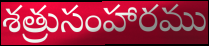
శత్రుసంహారము